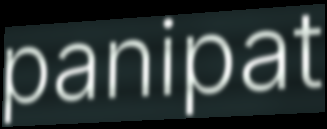
panipat